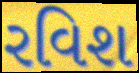
રવિશ